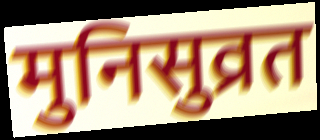
मुनिसुव्रत